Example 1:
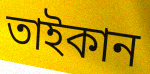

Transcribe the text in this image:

তাইকান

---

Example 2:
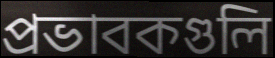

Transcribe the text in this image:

প্রভাবকগুলি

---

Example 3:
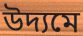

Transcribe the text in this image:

উদ্যমে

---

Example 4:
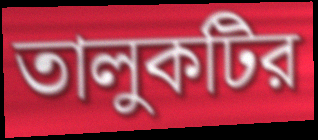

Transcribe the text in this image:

তালুকটির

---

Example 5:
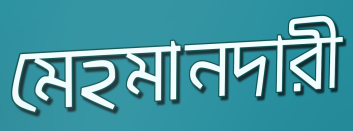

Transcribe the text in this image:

মেহমানদারী